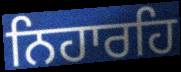
ਨਿਹਾਰਹਿ